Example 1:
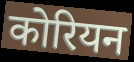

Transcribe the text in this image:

कोरियन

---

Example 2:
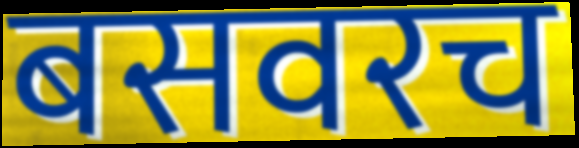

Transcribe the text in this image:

बसवरच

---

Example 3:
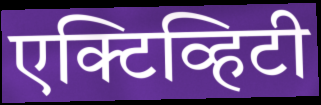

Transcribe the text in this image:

एक्टिव्हिटी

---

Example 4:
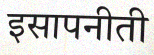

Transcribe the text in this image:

इसापनीती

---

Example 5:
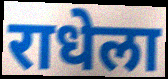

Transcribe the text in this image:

राधेला